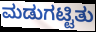
ಮಡುಗಟ್ಟಿತು